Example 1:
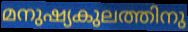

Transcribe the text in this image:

മനുഷ്യകുലത്തിനു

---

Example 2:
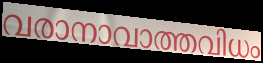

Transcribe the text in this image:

വരാനാവാത്തവിധം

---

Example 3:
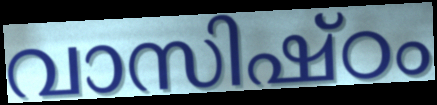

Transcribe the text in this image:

വാസിഷ്ഠം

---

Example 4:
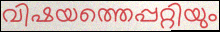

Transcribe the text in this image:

വിഷയത്തെപ്പറ്റിയും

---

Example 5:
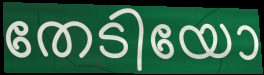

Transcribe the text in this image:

തേടിയോ